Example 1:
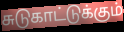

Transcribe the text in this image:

சுடுகாட்டுக்கும்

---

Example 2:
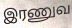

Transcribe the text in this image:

இரணுவ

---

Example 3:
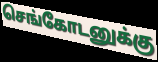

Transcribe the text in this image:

செங்கோடனுக்கு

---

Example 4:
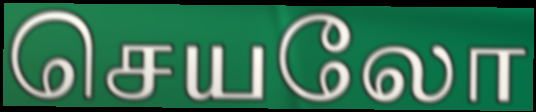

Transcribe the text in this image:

செயலோ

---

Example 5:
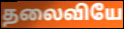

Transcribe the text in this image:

தலைவியே